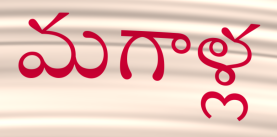
మగాళ్ల